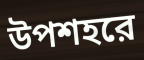
উপশহরে